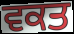
ਵਕਤ